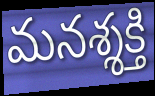
మనశ్శక్తి